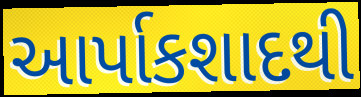
આર્પાકશાદથી